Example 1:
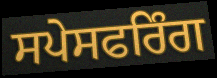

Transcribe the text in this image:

ਸਪੇਸਫਰਿੰਗ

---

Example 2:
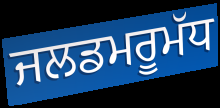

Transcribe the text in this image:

ਜਲਡਮਰੂਮੱਧ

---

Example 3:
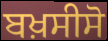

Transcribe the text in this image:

ਬਖ਼ਸੀਸੋ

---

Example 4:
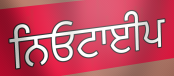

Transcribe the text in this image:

ਨਿਓਟਾਈਪ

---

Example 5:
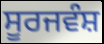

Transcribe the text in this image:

ਸੂਰਜਵੰਸ਼